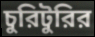
চুরিটুরির